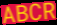
ABCR